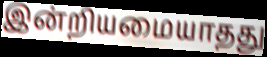
இன்றியமையாதது